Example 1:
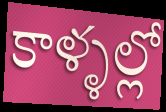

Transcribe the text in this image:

కాళ్ళల్లో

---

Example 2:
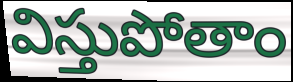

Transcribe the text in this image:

విస్తుపోతాం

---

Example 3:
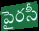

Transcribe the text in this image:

పైరసీ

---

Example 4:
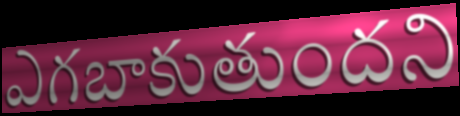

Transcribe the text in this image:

ఎగబాకుతుందని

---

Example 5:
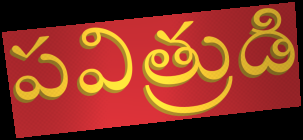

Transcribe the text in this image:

పవిత్రుడి